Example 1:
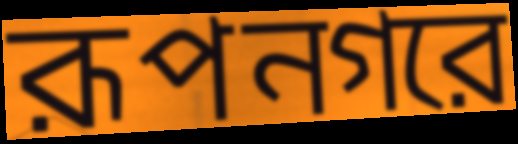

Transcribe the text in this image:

রূপনগরে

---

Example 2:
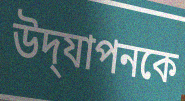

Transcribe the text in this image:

উদ্‌যাপনকে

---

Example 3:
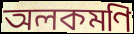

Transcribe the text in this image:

অলকমণি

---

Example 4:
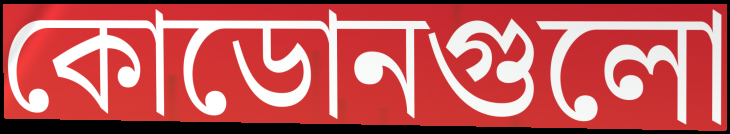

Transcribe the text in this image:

কোডোনগুলো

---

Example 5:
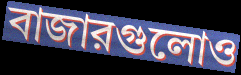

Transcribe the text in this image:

বাজারগুলোও